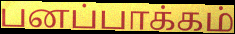
பனப்பாக்கம்